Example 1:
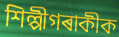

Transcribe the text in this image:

শিল্পীগৰাকীক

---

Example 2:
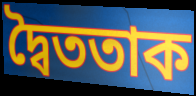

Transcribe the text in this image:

দ্বৈততাক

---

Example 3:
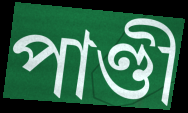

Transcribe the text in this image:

পাণ্ডী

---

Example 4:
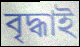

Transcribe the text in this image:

বৃদ্ধাই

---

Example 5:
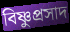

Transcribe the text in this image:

বিষ্ণুপ্ৰসাদ